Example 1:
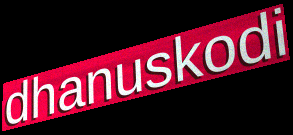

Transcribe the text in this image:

dhanuskodi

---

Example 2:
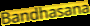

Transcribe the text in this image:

Bandhasana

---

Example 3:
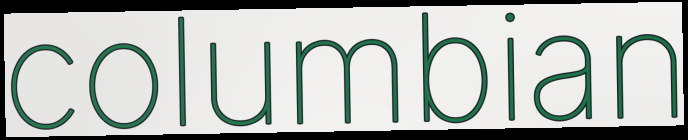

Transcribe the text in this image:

columbian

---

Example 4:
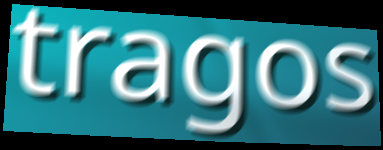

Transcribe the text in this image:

tragos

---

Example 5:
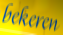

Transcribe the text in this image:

bekeren